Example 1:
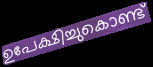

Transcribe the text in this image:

ഉപേക്ഷിച്ചുകൊണ്ട്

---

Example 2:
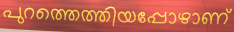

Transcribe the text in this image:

പുറത്തെത്തിയപ്പോഴാണ്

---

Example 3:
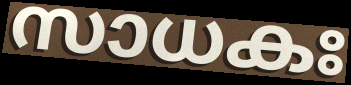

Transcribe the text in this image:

സാധകഃ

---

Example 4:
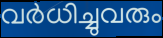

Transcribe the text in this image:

വർധിച്ചുവരും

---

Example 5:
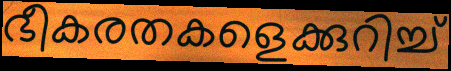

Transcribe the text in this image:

ഭീകരതകളെക്കുറിച്ച്